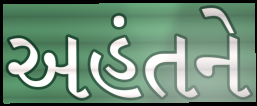
અહંતને